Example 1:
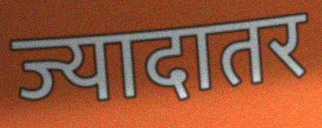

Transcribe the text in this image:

ज्यादातर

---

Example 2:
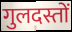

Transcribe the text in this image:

गुलदस्तों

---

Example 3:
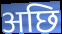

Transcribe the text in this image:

अछि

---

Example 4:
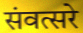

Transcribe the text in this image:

संवत्सरे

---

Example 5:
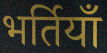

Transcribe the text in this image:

भर्तियाँ